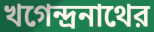
খগেন্দ্রনাথের